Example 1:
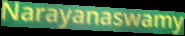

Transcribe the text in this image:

Narayanaswamy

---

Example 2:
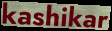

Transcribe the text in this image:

kashikar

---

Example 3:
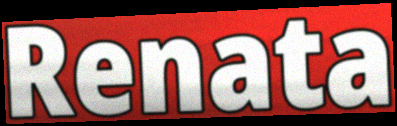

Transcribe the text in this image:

Renata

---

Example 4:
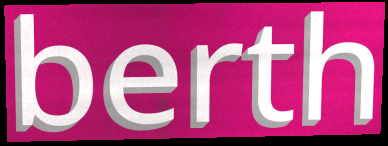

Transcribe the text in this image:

berth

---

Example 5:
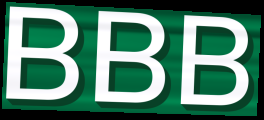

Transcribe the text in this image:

BBB